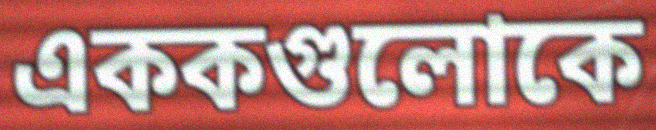
এককগুলোকে